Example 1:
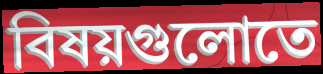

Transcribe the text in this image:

বিষয়গুলোতে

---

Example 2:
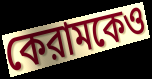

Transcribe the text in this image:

কেরামকেও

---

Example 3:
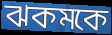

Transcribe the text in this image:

ঝকমকে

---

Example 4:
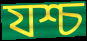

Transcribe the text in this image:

যশ্চ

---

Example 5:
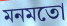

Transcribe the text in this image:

মনমতো